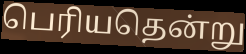
பெரியதென்று